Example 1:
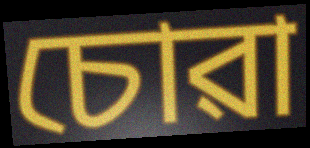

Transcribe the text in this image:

চোৱা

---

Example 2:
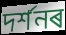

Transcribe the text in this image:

দৰ্শনৰ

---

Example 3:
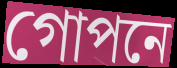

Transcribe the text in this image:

গোপনে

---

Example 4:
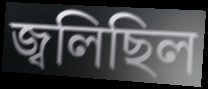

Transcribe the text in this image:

জ্বলিছিল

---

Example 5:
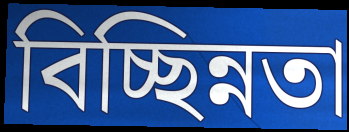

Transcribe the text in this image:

বিচ্ছিন্নতা